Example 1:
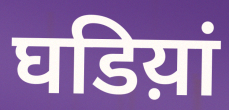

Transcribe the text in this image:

घडिय़ां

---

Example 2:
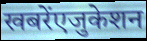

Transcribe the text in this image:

खबरेंएजुकेशन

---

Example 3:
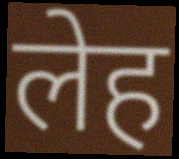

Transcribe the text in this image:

लेह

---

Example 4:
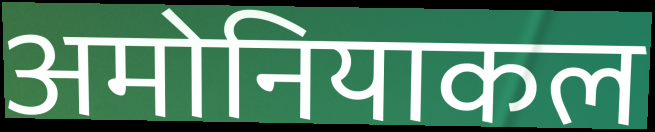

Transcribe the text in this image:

अमोनियाकल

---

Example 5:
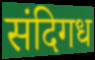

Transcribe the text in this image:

संदिगध